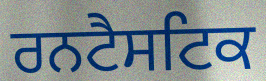
ਰਨਟੈਸਟਿਕ